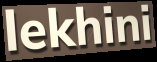
lekhini